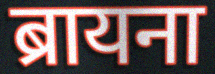
ब्रायना